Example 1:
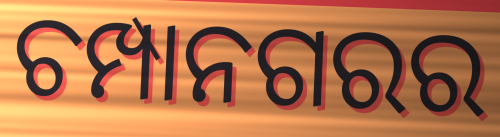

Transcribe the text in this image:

ଚମ୍ପାନଗରର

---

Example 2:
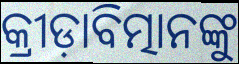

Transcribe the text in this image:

କ୍ରୀଡ଼ାବିତ୍ମାନଙ୍କୁ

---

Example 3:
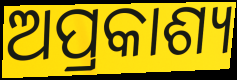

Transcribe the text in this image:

ଅପ୍ରକାଶ୍ୟ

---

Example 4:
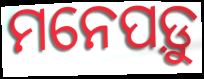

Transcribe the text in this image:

ମନେପଡ଼ୁ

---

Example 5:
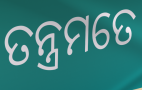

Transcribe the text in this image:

ତନ୍ତ୍ରମତେ